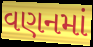
વણનમાં